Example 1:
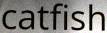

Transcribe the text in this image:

catfish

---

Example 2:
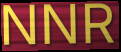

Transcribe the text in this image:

NNR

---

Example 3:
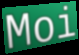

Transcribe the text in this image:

Moi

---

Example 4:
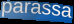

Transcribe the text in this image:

parassa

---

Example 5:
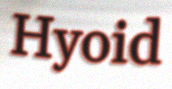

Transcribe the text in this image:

Hyoid